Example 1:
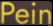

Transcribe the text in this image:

Pein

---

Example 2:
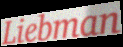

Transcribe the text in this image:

Liebman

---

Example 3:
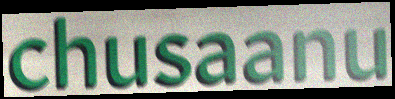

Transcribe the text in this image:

chusaanu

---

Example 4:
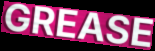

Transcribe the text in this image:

GREASE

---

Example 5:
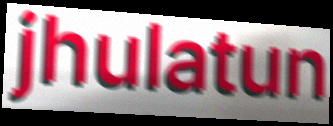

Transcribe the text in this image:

jhulatun